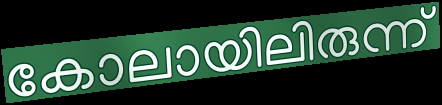
കോലായിലിരുന്ന്